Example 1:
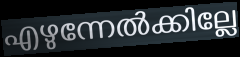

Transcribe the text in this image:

എഴുന്നേൽക്കില്ലേ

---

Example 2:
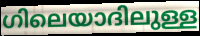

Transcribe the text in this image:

ഗിലെയാദിലുള്ള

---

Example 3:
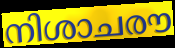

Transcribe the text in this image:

നിശാചരൗ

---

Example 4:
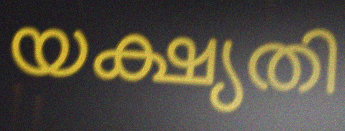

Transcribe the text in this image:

യക്ഷ്യതി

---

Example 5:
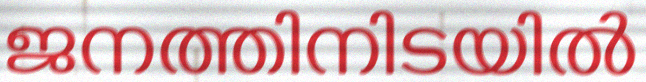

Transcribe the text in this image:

ജനത്തിനിടയിൽ